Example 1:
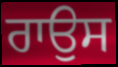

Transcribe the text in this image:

ਰਾਉਸ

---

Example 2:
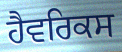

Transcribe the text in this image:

ਹੈਵਰਿਕਸ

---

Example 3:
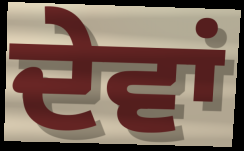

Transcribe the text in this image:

ਦੇਵਾਂ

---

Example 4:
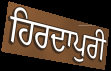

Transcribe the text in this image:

ਹਿਰਦਾਪੁਰੀ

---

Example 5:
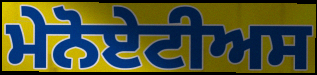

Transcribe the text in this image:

ਮੇਨੋਏਟੀਅਸ